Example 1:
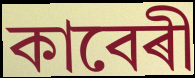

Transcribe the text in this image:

কাবেৰী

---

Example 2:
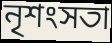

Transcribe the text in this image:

নৃশংসতা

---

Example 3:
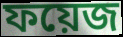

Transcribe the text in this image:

ফয়েজ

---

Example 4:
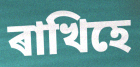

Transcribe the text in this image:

ৰাখিহে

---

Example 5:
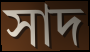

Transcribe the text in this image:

সাদ